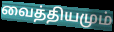
வைத்தியமும்